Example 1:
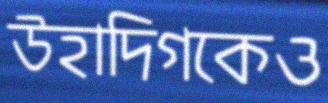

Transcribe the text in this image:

উহাদিগকেও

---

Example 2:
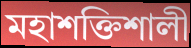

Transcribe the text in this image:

মহাশক্তিশালী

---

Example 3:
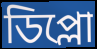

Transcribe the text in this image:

ডিপ্লো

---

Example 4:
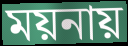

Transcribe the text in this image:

ময়নায়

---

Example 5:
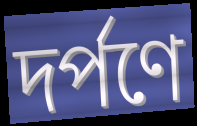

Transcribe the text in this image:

দর্পণে